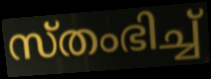
സ്തംഭിച്ച്